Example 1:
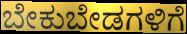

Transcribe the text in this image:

ಬೇಕುಬೇಡಗಳಿಗೆ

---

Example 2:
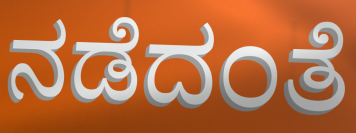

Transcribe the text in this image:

ನಡೆದಂತೆ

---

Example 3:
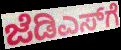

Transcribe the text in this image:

ಜೆಡಿಎಸ್‌ಗೆ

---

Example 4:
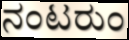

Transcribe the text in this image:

ನಂಟರುಂ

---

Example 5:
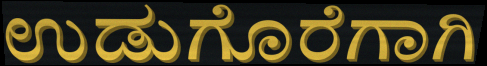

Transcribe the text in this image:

ಉಡುಗೊರೆಗಾಗಿ